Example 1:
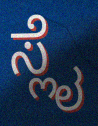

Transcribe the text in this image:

ಸ್ಲೈ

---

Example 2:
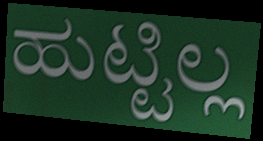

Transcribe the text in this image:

ಹುಟ್ಟಿಲ್ಲ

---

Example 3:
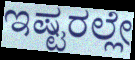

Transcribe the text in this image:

ಇಷ್ಟರಲ್ಲೇ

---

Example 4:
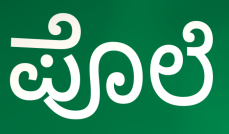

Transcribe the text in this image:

ಪೊಲೆ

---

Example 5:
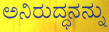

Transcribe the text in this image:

ಅನಿರುದ್ಧನನ್ನು